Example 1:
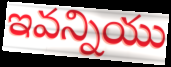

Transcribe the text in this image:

ఇవన్నియు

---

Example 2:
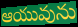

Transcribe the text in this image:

ఆయువును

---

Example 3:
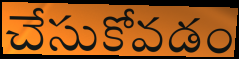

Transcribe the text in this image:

చేసుకోవడం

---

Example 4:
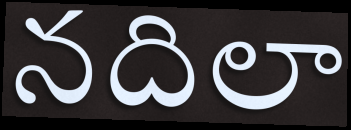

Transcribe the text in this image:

నదిలా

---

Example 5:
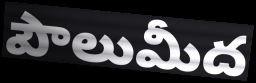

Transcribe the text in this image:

పౌలుమీద